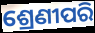
ଶ୍ରେଣୀପରି